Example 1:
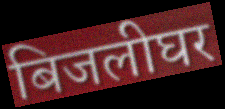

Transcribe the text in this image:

बिजलीघर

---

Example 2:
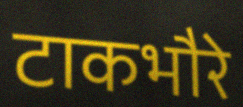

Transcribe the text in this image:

टाकभौरे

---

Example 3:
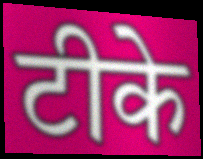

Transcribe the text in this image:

टीके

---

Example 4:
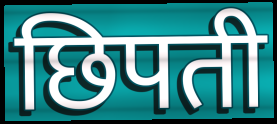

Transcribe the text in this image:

छिपती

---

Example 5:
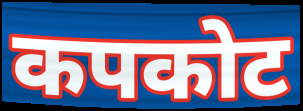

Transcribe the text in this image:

कपकोट